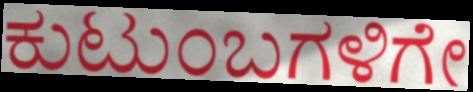
ಕುಟುಂಬಗಳಿಗೇ